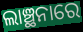
ଲାଞ୍ଛନାରେ